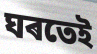
ঘৰতেই